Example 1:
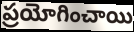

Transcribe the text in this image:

ప్రయోగించాయి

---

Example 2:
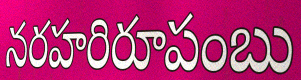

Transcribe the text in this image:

నరహరిరూపంబు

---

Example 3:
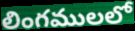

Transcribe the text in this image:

లింగములలో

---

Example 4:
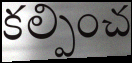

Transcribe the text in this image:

కల్పించ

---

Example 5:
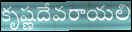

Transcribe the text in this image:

కృష్ణదేవరాయలి